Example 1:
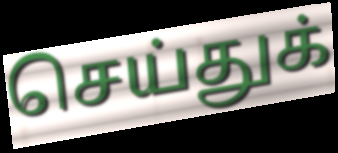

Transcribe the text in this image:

செய்துக்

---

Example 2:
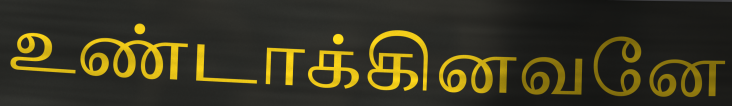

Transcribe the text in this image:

உண்டாக்கினவனே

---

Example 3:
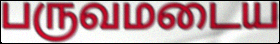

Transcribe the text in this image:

பருவமடைய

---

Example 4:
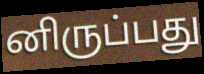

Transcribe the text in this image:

னிருப்பது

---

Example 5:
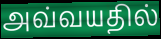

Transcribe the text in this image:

அவ்வயதில்